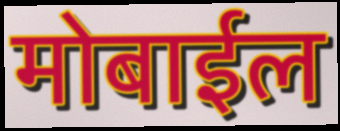
मोबाईल